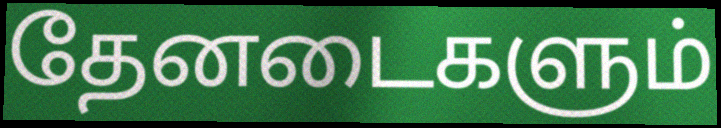
தேனடைகளும்